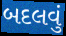
બદલવું